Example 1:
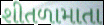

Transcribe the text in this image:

શીતળામાતા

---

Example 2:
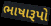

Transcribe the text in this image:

ભાષારૂપો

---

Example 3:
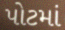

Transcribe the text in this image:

પોટમાં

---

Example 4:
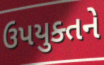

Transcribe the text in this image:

ઉપયુક્તને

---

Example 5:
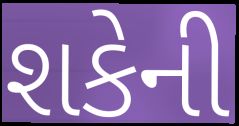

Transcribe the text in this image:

શકેની